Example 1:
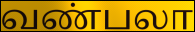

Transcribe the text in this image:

வண்பலா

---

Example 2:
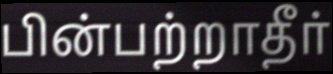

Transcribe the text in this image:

பின்பற்றாதீர்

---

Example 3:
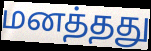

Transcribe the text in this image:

மனத்தது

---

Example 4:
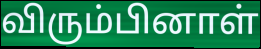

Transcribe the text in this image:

விரும்பினாள்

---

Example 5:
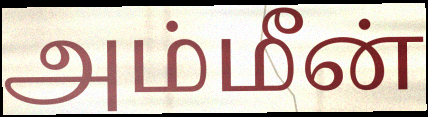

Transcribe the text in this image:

அம்மீன்